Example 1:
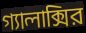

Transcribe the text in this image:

গ্যালাক্সির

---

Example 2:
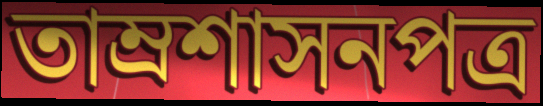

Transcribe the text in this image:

তাম্রশাসনপত্র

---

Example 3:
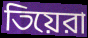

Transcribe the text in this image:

তিয়েরা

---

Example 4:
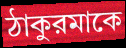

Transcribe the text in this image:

ঠাকুরমাকে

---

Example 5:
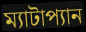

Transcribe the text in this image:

ম্যাটাপ্যান